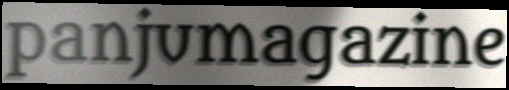
panjumagazine